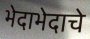
भेदाभेदाचे